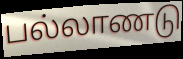
பல்லாணடு